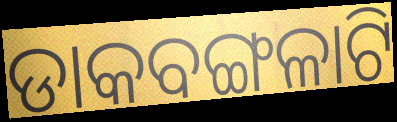
ଡାକବଙ୍ଗଳାଟି